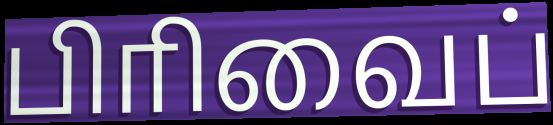
பிரிவைப்